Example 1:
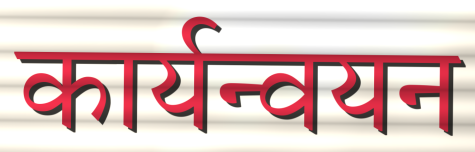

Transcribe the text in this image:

कार्यन्वयन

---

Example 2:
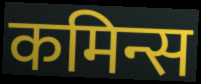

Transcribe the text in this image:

कमिन्स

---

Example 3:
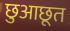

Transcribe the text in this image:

छुआछूत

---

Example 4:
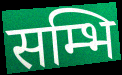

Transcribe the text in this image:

सम्भि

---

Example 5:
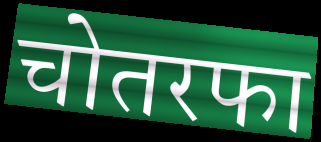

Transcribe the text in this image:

चोतरफा